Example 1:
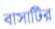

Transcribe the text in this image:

বাসাটির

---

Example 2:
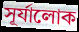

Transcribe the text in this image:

সূর্যালোক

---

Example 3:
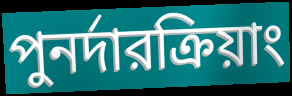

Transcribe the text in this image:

পুনর্দারক্রিয়াং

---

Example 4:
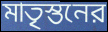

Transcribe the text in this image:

মাতৃস্তনের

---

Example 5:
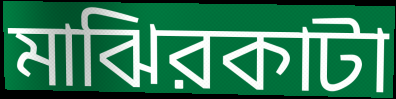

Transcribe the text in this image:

মাঝিরকাটা